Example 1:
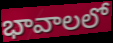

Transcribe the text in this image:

భావాలలో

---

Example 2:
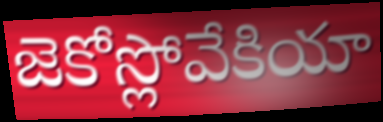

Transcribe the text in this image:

జెకోస్లోవేకియా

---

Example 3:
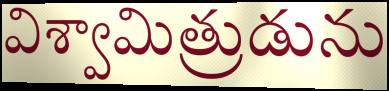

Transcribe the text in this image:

విశ్వామిత్రుడును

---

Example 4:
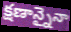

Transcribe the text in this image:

క్షణాన్నైనా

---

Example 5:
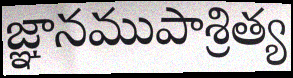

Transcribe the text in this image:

జ్ఞానముపాశ్రిత్య